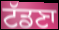
ਟੱਡਣਾ